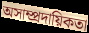
অসাম্প্রদায়িকতা